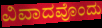
ವಿವಾದವೊಂದು